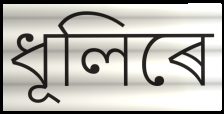
ধূলিৰে